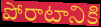
పోరాటానికి